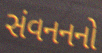
સંવનનનો